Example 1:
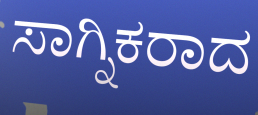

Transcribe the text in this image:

ಸಾಗ್ನಿಕರಾದ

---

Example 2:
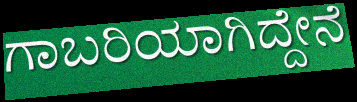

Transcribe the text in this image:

ಗಾಬರಿಯಾಗಿದ್ದೇನೆ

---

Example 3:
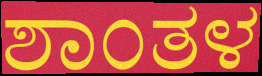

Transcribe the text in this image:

ಶಾಂತಳ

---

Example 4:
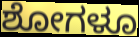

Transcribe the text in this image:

ಶೋಗಳೂ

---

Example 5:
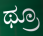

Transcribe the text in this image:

ಥ್ರೂ